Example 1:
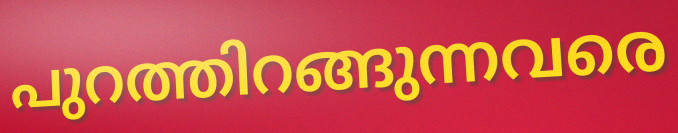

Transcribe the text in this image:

പുറത്തിറങ്ങുന്നവരെ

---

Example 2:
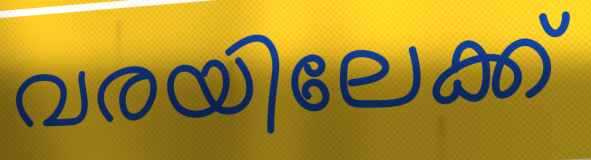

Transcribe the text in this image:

വരയിലേക്ക്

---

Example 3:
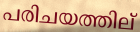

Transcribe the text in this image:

പരിചയത്തില്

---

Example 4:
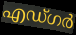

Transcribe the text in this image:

എഡ്ഗർ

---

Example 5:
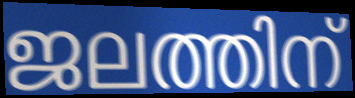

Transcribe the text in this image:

ജലത്തിന്